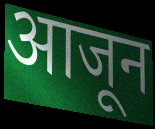
आजून